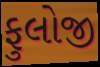
ફુલોજી